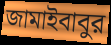
জামাইবাবুর